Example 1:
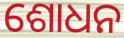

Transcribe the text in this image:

ଶୋଧନ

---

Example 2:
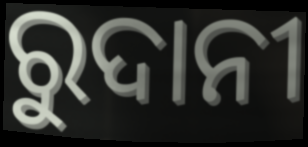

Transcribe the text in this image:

ରୁଦାନୀ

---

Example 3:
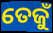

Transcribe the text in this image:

ତେଜୁଁ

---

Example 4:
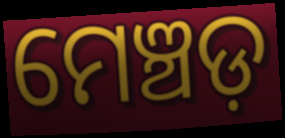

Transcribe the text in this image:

ମେଞ୍ଚଡ଼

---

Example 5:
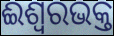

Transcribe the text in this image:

ଈଶ୍ୱରଭକ୍ତ